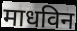
माधविन